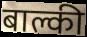
बाल्‍की